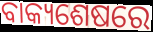
ବାକ୍ୟଶେଷରେ